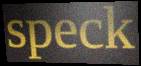
speck